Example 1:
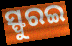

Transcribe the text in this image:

ସ୍ଫୁରଇ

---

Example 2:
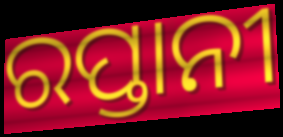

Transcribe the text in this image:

ରପ୍ତାନୀ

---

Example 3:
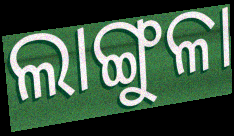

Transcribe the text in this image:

ଲାଙ୍ଗୁଳା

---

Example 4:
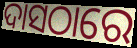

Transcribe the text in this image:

ଦାସଠାରେ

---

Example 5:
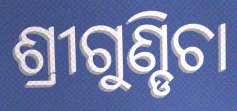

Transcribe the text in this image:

ଶ୍ରୀଗୁଣ୍ଡିଚା